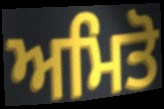
ਅਮਿਤੋ